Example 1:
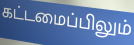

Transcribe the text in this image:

கட்டமைப்பிலும்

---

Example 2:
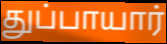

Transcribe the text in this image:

துப்பாயார்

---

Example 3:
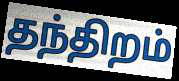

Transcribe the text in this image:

தந்திறம்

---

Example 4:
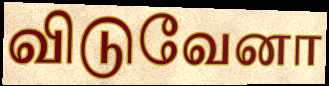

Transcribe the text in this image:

விடுவேனா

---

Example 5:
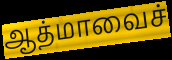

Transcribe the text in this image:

ஆத்மாவைச்